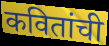
कवितांची